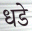
धडे